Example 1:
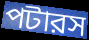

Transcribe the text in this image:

পটারস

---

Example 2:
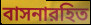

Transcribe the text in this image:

বাসনারহিত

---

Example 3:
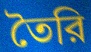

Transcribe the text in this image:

তৈরি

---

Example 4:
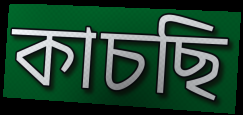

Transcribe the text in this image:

কাচছি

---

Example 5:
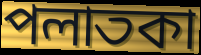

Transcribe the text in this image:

পলাতকা